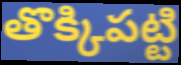
తొక్కిపట్టి